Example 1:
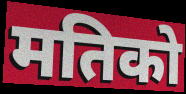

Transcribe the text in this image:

मतिको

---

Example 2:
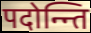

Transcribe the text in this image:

पदोन्न्ति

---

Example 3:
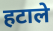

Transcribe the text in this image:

हटाले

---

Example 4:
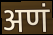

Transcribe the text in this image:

अणं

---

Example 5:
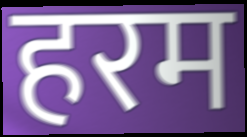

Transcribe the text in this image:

हरम